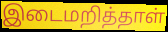
இடைமறித்தாள்